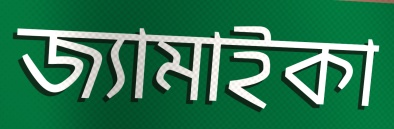
জ্যামাইকা